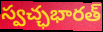
స్వచ్ఛభారత్